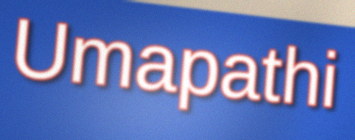
Umapathi